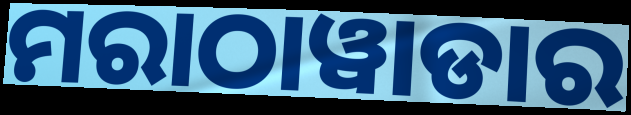
ମରାଠାୱାଡାର